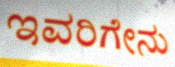
ಇವರಿಗೇನು